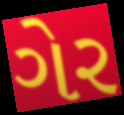
ગેર